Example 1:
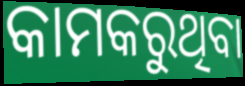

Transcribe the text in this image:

କାମକରୁଥିବା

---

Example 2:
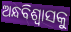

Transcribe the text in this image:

ଅନ୍ଧବିଶ୍ୱାସକୁ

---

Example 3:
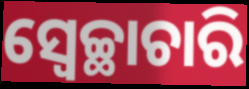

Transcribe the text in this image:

ସ୍ଵେଚ୍ଛାଚାରି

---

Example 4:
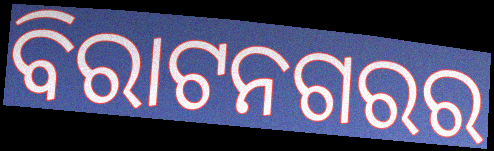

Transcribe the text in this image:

ବିରାଟନଗରର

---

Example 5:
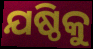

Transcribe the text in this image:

ଯଷ୍ଠିକୁ